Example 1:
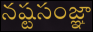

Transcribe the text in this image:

నష్టసంజ్ఞా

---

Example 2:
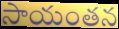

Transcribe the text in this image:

సాయంతన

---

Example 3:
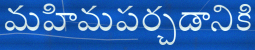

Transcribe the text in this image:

మహిమపర్చడానికి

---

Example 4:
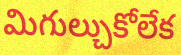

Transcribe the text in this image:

మిగుల్చుకోలేక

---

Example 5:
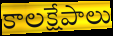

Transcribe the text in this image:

కాలక్షేపాలు